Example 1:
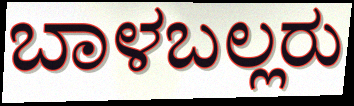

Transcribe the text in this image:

ಬಾಳಬಲ್ಲರು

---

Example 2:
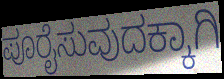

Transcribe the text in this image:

ಪೂರೈಸುವುದಕ್ಕಾಗಿ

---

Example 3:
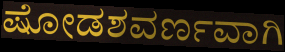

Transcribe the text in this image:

ಷೋಡಶವರ್ಣವಾಗಿ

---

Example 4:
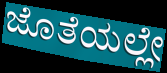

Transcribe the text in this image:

ಜೊತೆಯಲ್ಲೇ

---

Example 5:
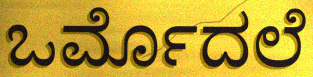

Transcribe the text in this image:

ಒರ್ಮೊದಲೆ